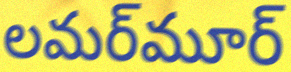
లమర్‌మూర్